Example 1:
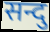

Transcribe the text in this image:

सन्दु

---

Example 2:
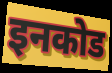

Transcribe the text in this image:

इनकोड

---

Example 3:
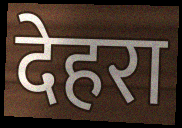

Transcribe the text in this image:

देहरा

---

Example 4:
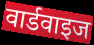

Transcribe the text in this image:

वार्डवाइज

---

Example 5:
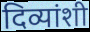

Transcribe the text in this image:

दिव्यांशी